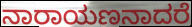
ನಾರಾಯಣನಾದರೆ